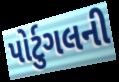
પોર્ટુગલની